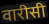
वारीसी